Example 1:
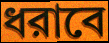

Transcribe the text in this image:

ধরাবে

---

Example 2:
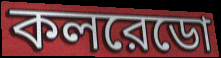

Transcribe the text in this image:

কলরেডো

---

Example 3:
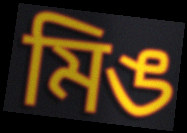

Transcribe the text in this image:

মিঙ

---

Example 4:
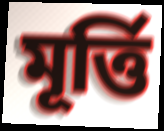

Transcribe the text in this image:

মূর্ত্তি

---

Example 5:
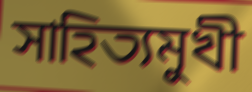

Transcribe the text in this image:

সাহিত্যমুখী